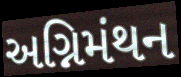
અગ્નિમંથન